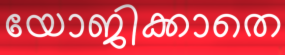
യോജിക്കാതെ